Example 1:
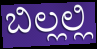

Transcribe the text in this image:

ಬಿಲ್ಲಲ್ಲಿ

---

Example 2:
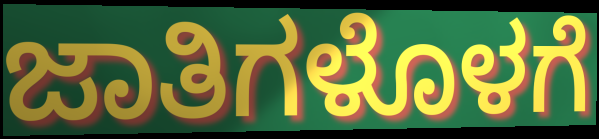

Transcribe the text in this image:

ಜಾತಿಗಳೊಳಗೆ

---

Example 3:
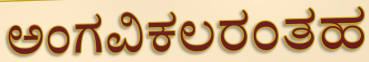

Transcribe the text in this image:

ಅಂಗವಿಕಲರಂತಹ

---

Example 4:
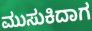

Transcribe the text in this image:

ಮುಸುಕಿದಾಗ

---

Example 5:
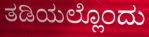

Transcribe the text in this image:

ತಡಿಯಲ್ಲೊಂದು